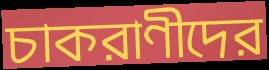
চাকরাণীদের